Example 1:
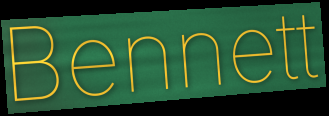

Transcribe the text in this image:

Bennett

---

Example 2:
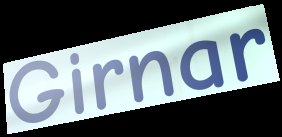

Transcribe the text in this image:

Girnar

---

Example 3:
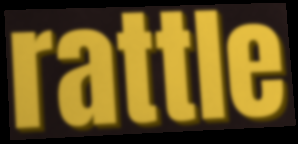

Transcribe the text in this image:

rattle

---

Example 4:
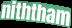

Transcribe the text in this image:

niththam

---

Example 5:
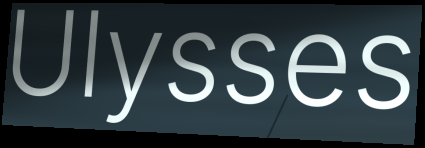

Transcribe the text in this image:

Ulysses